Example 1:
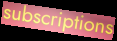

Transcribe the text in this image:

subscriptions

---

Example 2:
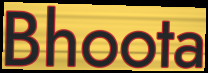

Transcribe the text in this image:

Bhoota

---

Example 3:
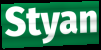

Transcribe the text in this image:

Styan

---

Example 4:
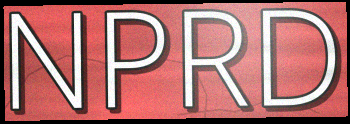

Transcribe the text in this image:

NPRD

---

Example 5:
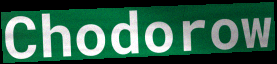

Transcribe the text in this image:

Chodorow